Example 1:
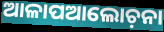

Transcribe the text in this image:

ଆଳାପଆଲୋଚ଼ନା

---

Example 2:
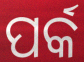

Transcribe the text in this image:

ପର୍କ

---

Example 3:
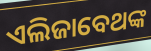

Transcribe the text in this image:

ଏଲିଜାବେଥଙ୍କ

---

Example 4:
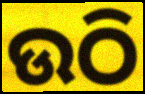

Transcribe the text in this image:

ଉଠି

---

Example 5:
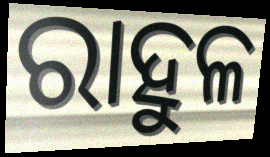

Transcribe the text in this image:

ରାହୁଳ